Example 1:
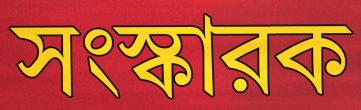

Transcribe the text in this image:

সংস্কারক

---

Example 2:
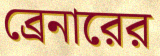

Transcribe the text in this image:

ব্রেনারের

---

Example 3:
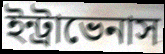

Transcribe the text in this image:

ইন্ট্রাভেনাস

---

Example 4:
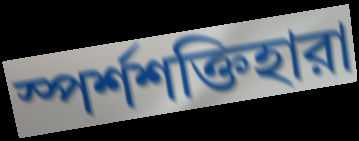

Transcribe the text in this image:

স্পর্শশক্তিহারা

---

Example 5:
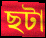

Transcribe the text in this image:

ছটা